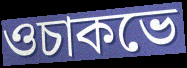
ওচাকভে